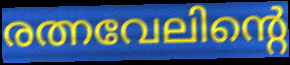
രത്നവേലിന്റെ